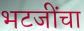
भटजींचा